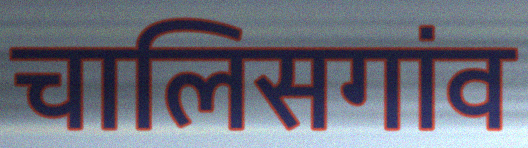
चालिसगांव